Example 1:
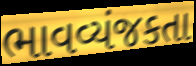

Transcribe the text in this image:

ભાવવ્યંજકતા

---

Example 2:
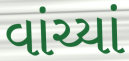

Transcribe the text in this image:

વાંચ્યાં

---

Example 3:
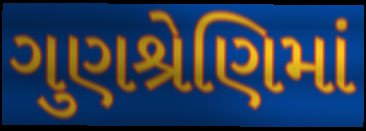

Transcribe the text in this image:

ગુણશ્રેણિમાં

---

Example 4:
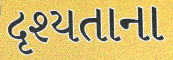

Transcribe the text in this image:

દૃશ્યતાના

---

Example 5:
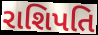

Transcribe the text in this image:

રાશિપતિ